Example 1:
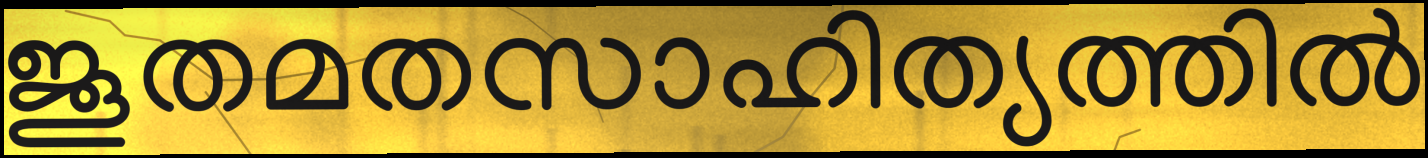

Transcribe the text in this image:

ജൂതമതസാഹിത്യത്തിൽ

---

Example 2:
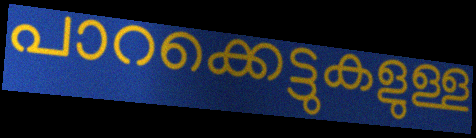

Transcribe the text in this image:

പാറക്കെട്ടുകളുള്ള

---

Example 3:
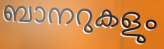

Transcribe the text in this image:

ബാനറുകളും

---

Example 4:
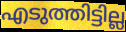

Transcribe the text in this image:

എടുത്തിട്ടില്ല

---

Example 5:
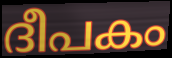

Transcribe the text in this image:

ദീപകം